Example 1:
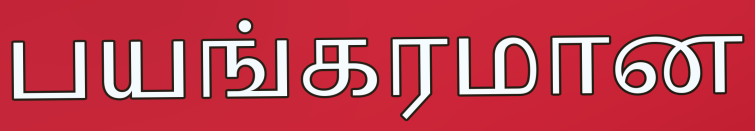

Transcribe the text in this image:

பயங்கரமான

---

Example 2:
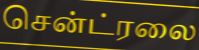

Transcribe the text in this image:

சென்ட்ரலை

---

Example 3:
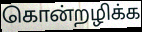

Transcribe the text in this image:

கொன்றழிக்க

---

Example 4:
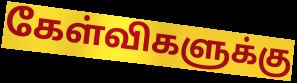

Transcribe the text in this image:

கேள்விகளுக்கு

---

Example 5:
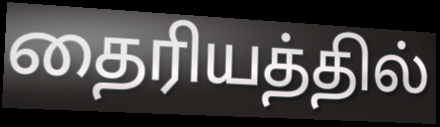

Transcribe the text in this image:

தைரியத்தில்